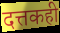
दत्तकही